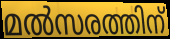
മൽസരത്തിന്